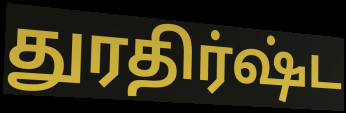
துரதிர்ஷ்ட